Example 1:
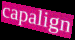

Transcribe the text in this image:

capalign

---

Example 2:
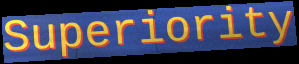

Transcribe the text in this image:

Superiority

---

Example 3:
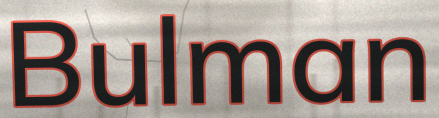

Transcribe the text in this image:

Bulman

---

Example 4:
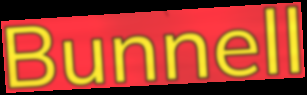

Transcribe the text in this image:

Bunnell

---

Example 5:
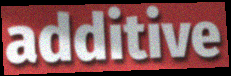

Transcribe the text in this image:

additive